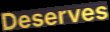
Deserves